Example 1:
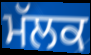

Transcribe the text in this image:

ਮੱਲਕ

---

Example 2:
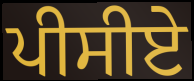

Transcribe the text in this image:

ਪੀਸੀਏ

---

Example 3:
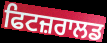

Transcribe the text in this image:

ਫਿਟਜ਼ਰਾਲਡ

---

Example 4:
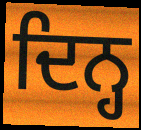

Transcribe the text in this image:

ਦਿਨ੍ਹ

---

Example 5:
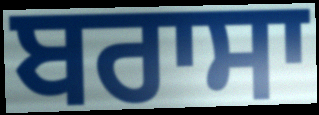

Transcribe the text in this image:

ਬਰਾਸਾ